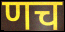
णच